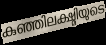
കുഞ്ഞിലക്ഷ്മിയുടെ